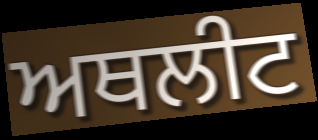
ਅਥਲੀਟ